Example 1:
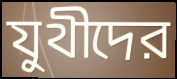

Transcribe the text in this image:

যুথীদের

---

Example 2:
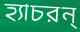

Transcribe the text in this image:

হ্যাচরন্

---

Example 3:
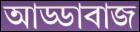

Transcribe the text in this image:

আড্ডাবাজ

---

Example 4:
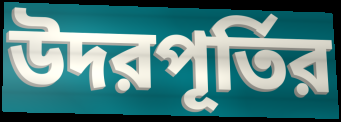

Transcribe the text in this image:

উদরপূর্তির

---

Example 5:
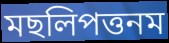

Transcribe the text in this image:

মছলিপত্তনম